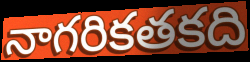
నాగరికతకది